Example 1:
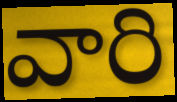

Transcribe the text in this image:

వారి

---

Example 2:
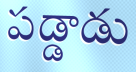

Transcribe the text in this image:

పడ్డాడు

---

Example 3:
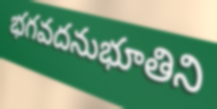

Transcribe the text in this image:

భగవదనుభూతిని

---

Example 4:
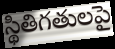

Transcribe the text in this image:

స్థితిగతులపై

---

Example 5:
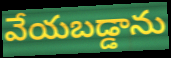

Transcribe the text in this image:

వేయబడ్డాను